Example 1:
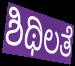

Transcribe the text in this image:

ಶಿಥಿಲತೆ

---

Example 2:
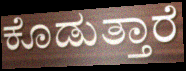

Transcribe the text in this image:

ಕೊಡುತ್ತಾರೆ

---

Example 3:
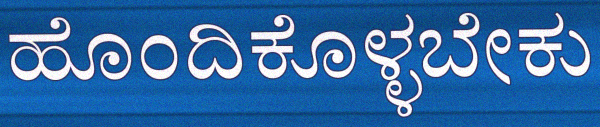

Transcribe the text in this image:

ಹೊಂದಿಕೊಳ್ಳಬೇಕು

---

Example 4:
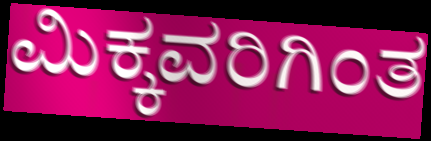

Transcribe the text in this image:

ಮಿಕ್ಕವರಿಗಿಂತ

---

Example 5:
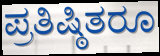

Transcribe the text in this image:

ಪ್ರತಿಷ್ಠಿತರೂ